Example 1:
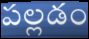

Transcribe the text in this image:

పల్లడం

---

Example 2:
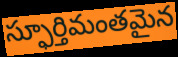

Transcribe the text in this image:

స్ఫూర్తిమంతమైన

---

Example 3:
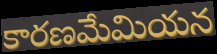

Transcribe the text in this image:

కారణమేమియన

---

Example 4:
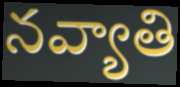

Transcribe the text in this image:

నవ్యాతి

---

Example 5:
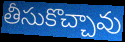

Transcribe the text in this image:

తీసుకొచ్చావు